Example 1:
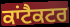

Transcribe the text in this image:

ਕਾਂਟੈਕਟਰ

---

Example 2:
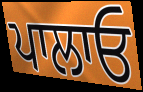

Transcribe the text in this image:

ਪਾਲਾਓ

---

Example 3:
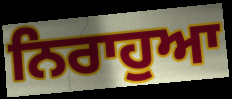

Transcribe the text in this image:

ਨਿਰਾਹੁਆ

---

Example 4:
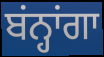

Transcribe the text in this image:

ਬਂਨ੍ਹਾਂਗਾ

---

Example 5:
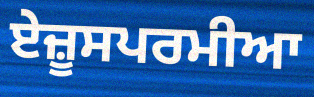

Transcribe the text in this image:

ਏਜ਼ੂਸਪਰਮੀਆ